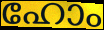
ഹോം